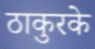
ठाकुरके